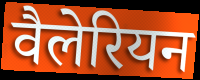
वैलेरियन